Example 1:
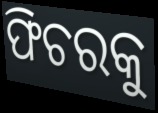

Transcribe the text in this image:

ଫିଚରକୁ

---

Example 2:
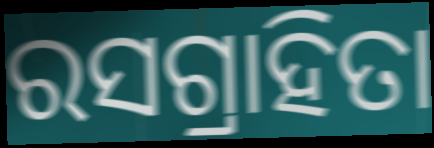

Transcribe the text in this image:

ରସଗ୍ରାହିତା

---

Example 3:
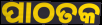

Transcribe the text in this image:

ପାଠତକ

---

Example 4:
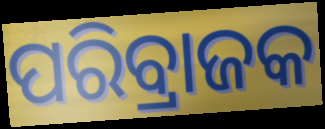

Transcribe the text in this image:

ପରିବ୍ରାଜକ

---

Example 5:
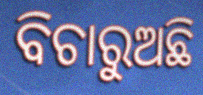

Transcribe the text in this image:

ବିଚାରୁଅଛି